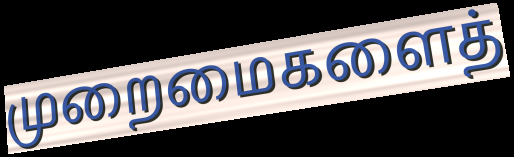
முறைமைகளைத்